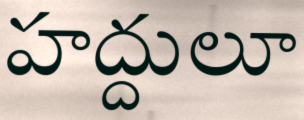
హద్దులూ